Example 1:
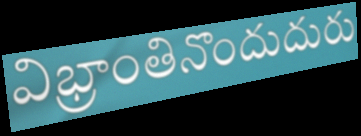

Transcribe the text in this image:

విభ్రాంతినొందుదురు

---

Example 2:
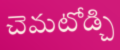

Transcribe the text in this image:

చెమటోడ్చి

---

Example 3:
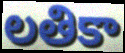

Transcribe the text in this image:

లతికా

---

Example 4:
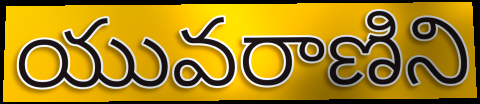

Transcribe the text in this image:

యువరాణిని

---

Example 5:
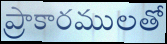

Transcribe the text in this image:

ప్రాకారములతో